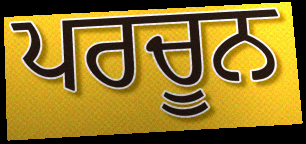
ਪਰਚੂਨ